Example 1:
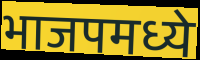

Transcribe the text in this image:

भाजपमध्ये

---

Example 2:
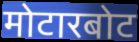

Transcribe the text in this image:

मोटारबोट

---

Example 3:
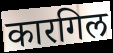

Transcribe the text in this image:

कारगिल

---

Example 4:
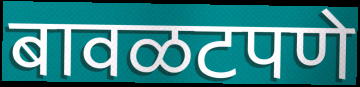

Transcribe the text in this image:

बावळटपणे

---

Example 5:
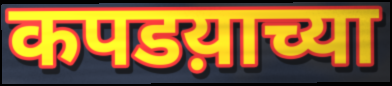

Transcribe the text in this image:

कपडय़ाच्या